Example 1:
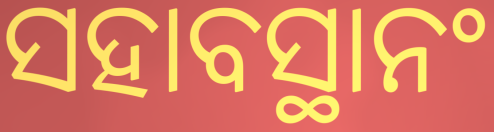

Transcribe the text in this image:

ସହାବସ୍ଥାନଂ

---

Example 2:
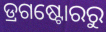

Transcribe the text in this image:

ଡ୍ରଗଷ୍ଟୋରରୁ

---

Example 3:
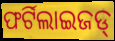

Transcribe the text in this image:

ଫର୍ଟିଲାଇଜଡ୍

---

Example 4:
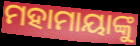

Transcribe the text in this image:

ମହାମାୟାଙ୍କୁ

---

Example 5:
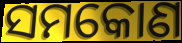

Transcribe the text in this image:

ସମକୋଣ